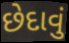
છેદાવું